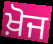
ਖ਼ੋਜ